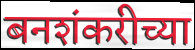
बनशंकरीच्या